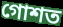
গোশত